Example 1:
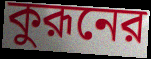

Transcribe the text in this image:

কুরূনের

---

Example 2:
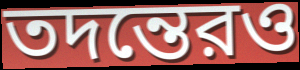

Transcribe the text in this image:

তদন্তেরও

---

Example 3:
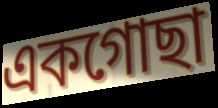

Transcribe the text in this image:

একগোছা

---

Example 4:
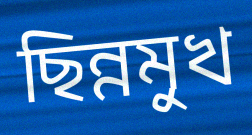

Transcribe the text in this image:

ছিন্নমুখ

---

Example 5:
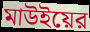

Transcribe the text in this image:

মাউইয়ের